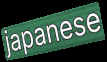
japanese